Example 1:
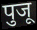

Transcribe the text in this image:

पुजू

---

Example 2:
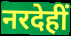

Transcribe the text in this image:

नरदेहीं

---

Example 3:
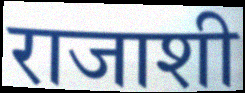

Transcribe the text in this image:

राजाशी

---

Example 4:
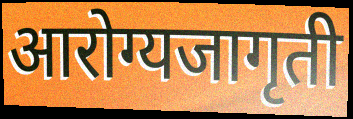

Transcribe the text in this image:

आरोग्यजागृती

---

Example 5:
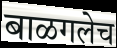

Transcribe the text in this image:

बाळगलेच